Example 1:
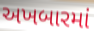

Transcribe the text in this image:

અખબારમાં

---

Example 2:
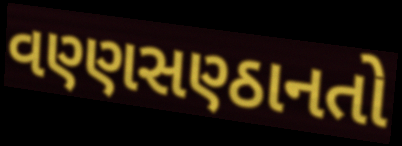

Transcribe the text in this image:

વણ્ણસણ્ઠાનતો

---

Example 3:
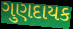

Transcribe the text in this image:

ગુણદાયક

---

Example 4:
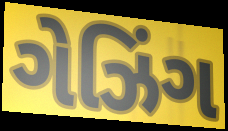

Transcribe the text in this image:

ગેઝિંગ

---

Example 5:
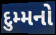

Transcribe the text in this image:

દુમ્મનો